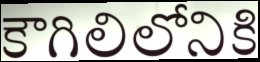
కౌగిలిలోనికి